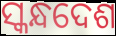
ସ୍କନ୍ଧଦେଶ